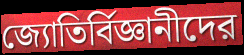
জ্যোতির্বিজ্ঞানীদের